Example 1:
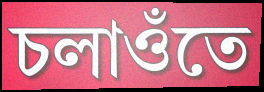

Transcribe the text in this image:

চলাওঁতে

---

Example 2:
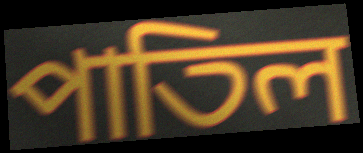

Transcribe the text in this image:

পাতিল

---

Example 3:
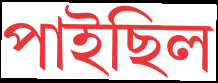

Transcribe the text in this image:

পাইছিল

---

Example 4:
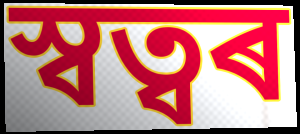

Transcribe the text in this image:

স্বত্বৰ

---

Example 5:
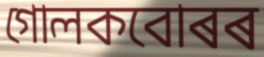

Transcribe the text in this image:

গোলকবোৰৰ